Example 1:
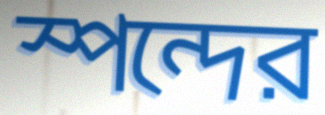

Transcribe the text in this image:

স্পন্দের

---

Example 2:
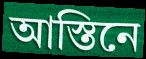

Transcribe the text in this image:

আস্তিনে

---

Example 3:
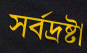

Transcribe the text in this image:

সর্বদ্রষ্টা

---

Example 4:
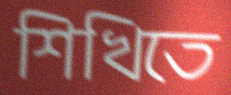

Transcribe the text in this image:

শিখিতে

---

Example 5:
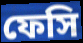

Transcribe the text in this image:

ফেসি